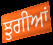
ਝੁਗੀਆਂ